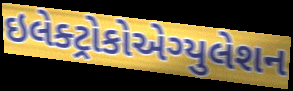
ઇલેક્ટ્રોકોએગ્યુલેશન